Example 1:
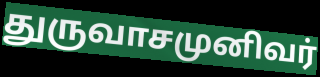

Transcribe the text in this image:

துருவாசமுனிவர்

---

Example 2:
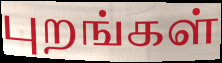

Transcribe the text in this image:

புறங்கள்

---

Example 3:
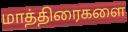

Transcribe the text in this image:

மாத்திரைகளை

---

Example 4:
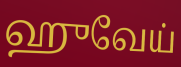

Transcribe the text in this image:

ஹுவேய்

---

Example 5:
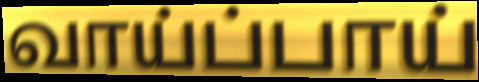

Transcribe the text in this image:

வாய்ப்பாய்